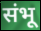
संभू